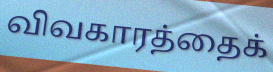
விவகாரத்தைக்